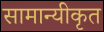
सामान्यीकृत